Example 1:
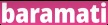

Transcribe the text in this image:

baramati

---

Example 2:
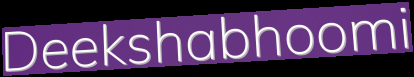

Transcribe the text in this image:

Deekshabhoomi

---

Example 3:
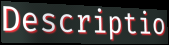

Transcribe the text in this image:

Descriptio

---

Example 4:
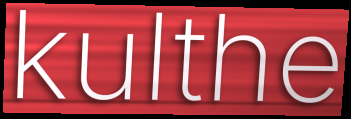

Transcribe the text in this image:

kulthe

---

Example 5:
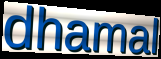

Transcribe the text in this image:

dhamal